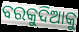
ବରକୁଦିଆକୁ